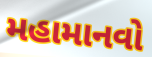
મહામાનવો